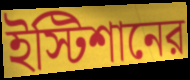
ইস্টিশানের